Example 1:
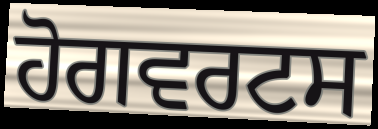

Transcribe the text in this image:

ਹੋਗਵਰਟਸ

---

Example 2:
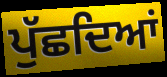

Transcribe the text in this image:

ਪੁੱਛਦਿਆਂ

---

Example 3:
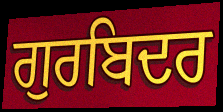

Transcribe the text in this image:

ਗੁਰਬਿਦਰ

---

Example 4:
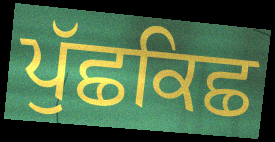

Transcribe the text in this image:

ਪੁੱਛਕਿਛ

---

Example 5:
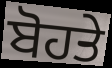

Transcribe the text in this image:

ਬੋਹਤੇ